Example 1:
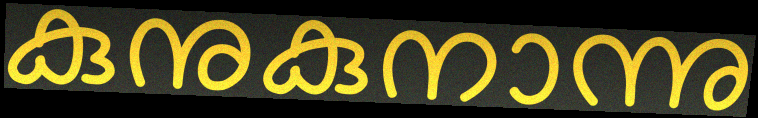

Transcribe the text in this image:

കുനുകുനാന്നു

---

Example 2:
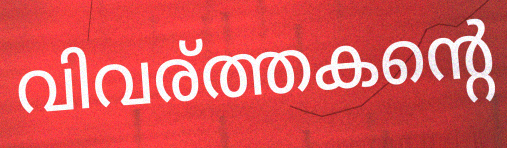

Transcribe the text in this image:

വിവര്ത്തകന്റെ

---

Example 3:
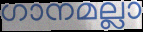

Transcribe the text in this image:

ഗാനമല്ലാ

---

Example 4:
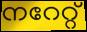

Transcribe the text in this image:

നറേറ്റ്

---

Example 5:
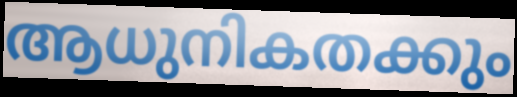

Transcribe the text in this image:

ആധുനികതക്കും